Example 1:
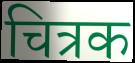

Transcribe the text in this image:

चित्रक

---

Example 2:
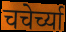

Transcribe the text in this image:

चचेर्च्या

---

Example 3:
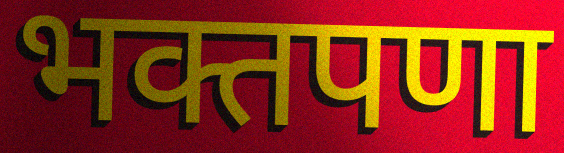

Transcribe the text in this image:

भक्तपणा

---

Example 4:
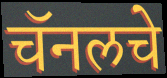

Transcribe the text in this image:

चॅनलचे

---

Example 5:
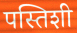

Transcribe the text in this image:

पस्तिशी